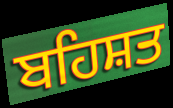
ਬਹਿਸ਼ਤ